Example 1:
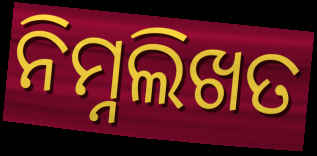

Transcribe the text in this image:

ନିମ୍ନଲିଖତ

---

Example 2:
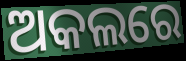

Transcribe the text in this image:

ଅକଲରେ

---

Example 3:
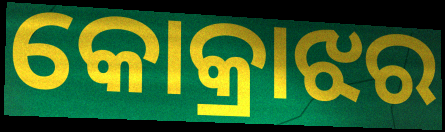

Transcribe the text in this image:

କୋକ୍ରାଝର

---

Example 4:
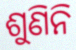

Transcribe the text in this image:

ଶୁଣିନି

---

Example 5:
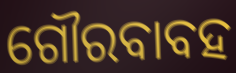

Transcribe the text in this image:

ଗୌରବାବହ